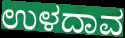
ಉಳದಾವ